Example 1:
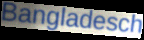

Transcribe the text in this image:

Bangladesch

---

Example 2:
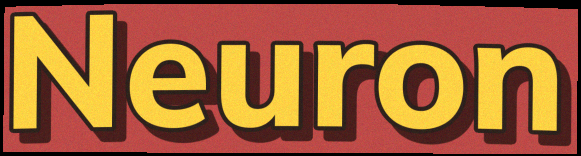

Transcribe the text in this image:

Neuron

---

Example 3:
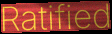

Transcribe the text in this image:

Ratified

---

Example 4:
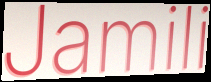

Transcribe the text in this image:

Jamili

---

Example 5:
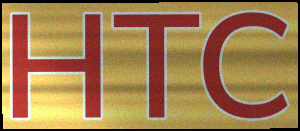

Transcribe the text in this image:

HTC